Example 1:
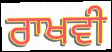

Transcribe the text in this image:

ਰਾਖਵੀ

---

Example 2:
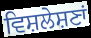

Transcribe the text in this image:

ਵਿਸ਼ਲੇਸ਼ਣਾਂ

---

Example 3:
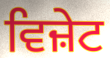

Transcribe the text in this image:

ਵਿਜ਼ੇਟ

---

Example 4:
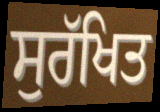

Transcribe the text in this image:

ਸੁਰੱਖਿਤ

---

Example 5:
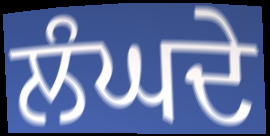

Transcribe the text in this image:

ਲੰਘਦੇ